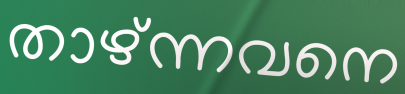
താഴ്ന്നവനെ